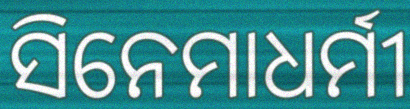
ସିନେମାଧର୍ମୀ